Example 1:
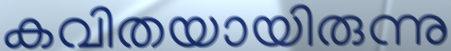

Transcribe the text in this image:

കവിതയായിരുന്നു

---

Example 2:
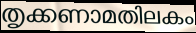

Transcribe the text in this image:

തൃക്കണാമതിലകം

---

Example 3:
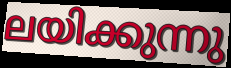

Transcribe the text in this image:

ലയിക്കുന്നു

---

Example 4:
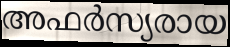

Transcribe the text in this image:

അഫർസ്യരായ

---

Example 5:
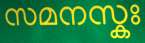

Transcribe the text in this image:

സമനസ്കഃ